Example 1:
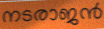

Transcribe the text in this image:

നടരാജൻ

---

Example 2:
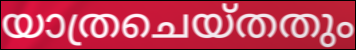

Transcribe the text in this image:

യാത്രചെയ്തതും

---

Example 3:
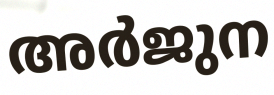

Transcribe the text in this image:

അർജുന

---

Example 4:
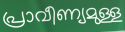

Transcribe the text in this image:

പ്രാവീണ്യമുള്ള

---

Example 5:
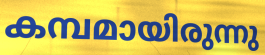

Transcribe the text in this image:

കമ്പമായിരുന്നു